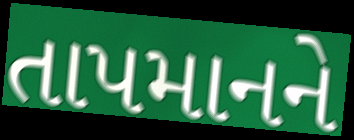
તાપમાનને